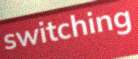
switching